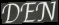
DEN